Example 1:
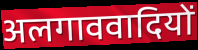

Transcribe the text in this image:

अलगाववादियों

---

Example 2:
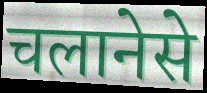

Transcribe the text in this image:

चलानेसे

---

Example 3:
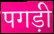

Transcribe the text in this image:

पगड़ी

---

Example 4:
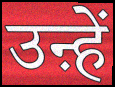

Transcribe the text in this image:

उऩ्हें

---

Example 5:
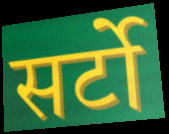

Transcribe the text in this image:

सर्टो